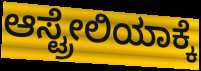
ಆಸ್ಟ್ರೇಲಿಯಾಕ್ಕೆ